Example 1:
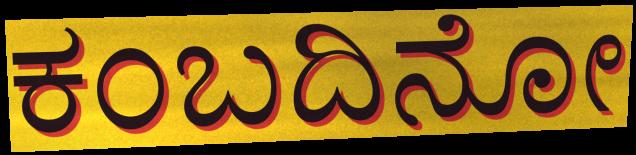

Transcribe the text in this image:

ಕಂಬದಿನೋ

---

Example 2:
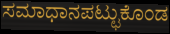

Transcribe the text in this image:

ಸಮಾಧಾನಪಟ್ಟುಕೊಂಡ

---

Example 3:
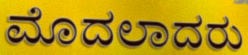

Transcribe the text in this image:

ಮೊದಲಾದರು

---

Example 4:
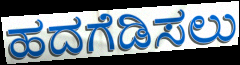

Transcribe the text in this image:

ಹದಗೆಡಿಸಲು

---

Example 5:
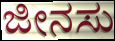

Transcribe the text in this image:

ಜೀನಸು